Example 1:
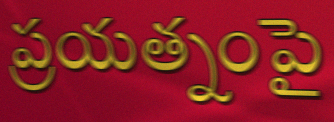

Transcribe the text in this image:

ప్రయత్నంపై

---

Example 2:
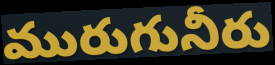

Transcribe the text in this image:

మురుగునీరు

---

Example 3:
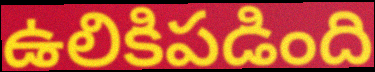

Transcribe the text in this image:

ఉలికిపడింది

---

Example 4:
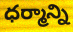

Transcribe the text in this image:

ధర్మాన్ని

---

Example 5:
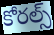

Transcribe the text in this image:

కోరల్స్